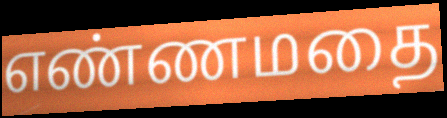
எண்ணமதை